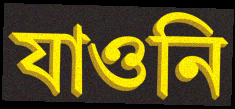
যাওনি